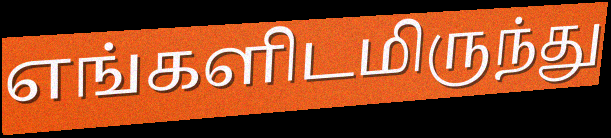
எங்களிடமிருந்து